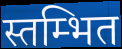
स्तम्भित